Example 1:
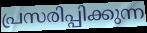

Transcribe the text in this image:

പ്രസരിപ്പിക്കുന്ന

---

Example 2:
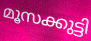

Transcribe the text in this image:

മൂസക്കുട്ടി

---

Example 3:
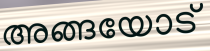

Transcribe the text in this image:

അങ്ങയോട്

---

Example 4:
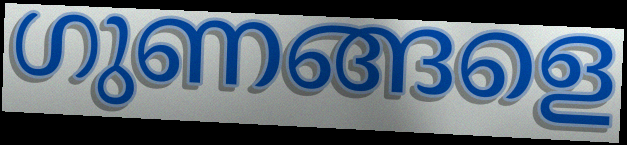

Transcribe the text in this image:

ഗുണങ്ങളെ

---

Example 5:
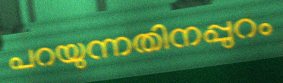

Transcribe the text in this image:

പറയുന്നതിനപ്പുറം